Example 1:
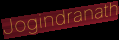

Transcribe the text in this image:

Jogindranath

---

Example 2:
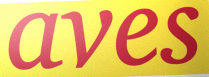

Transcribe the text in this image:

aves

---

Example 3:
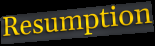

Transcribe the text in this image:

Resumption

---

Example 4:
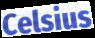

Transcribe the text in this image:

Celsius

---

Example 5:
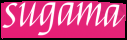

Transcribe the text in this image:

sugama